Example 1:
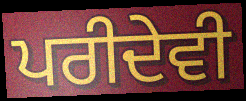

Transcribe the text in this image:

ਪਰੀਦੇਵੀ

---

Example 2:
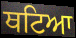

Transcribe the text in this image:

ਥਟਿਆ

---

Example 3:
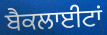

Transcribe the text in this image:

ਬੈਕਲਾਈਟਾਂ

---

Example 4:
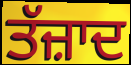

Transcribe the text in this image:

ਤੱਜ਼ਾਦ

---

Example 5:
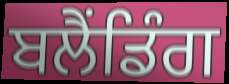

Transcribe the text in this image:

ਬਲੈਂਡਿੰਗ